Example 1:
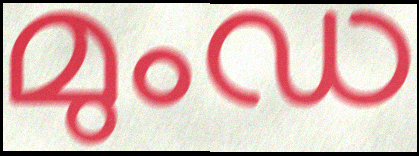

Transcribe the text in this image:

മുംഡ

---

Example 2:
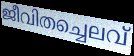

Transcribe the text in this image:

ജീവിതച്ചെലവ്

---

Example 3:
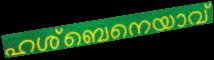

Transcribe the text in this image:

ഹശ്ബെനെയാവ്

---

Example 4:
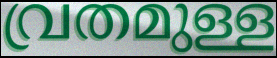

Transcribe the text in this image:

വ്രതമുള്ള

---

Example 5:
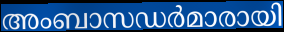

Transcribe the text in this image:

അംബാസഡർമാരായി